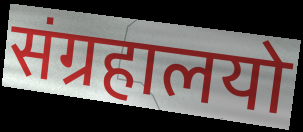
संग्रहालयो